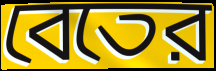
বেতের